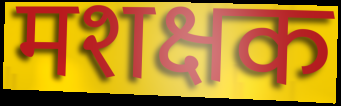
मशक्षक